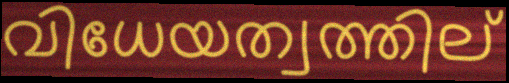
വിധേയത്വത്തില്